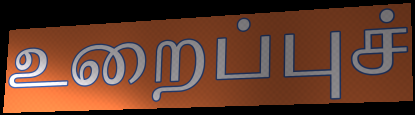
உறைப்புச்